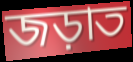
জড়াত